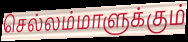
செல்லம்மாளுக்கும்